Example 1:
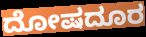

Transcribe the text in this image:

ದೋಷದೂರ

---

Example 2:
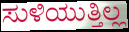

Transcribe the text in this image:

ಸುಳಿಯುತ್ತಿಲ್ಲ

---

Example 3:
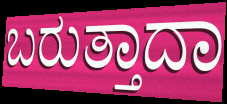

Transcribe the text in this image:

ಬರುತ್ತಾದಾ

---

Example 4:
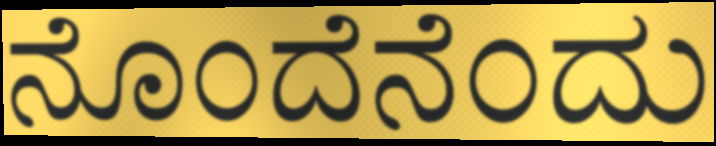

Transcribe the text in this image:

ನೊಂದೆನೆಂದು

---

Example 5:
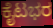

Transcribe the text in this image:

ಕೈಟಭರ